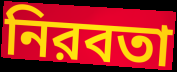
নিরবতা